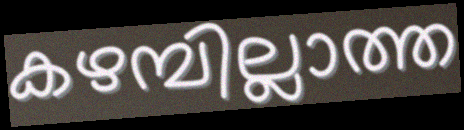
കഴമ്പില്ലാത്ത